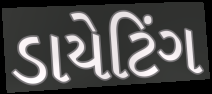
ડાયેટિંગ